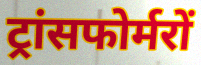
ट्रांसफोर्मरों